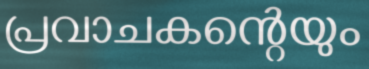
പ്രവാചകന്റെയും